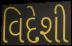
વિદેશી